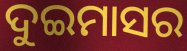
ଦୁଇମାସର